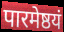
पारमेष्ठयं